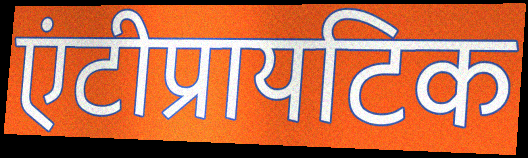
एंटीप्रायटिक